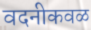
वदनीकवळ